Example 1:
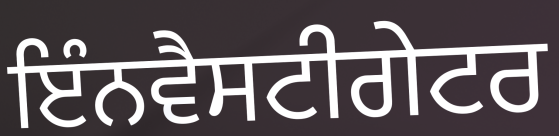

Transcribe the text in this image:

ਇੰਨਵੈਸਟੀਗੇਟਰ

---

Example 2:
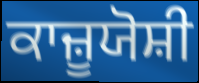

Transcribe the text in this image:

ਕਾਜ਼ੂਯੋਸ਼ੀ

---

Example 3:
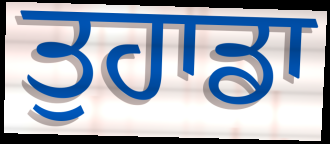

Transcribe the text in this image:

ਤੁਹਾਡਾ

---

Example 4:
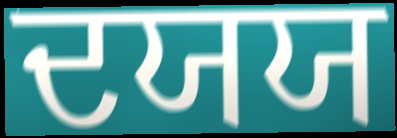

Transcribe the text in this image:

ਦਯਯ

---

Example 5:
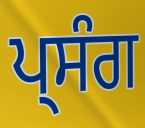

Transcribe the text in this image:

ਪ੍ਸੰਗ